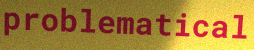
problematical